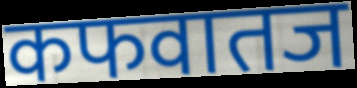
कफवातज